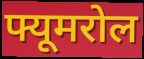
फ्यूमरोल